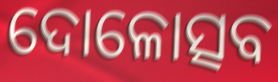
ଦୋଳୋତ୍ସବ